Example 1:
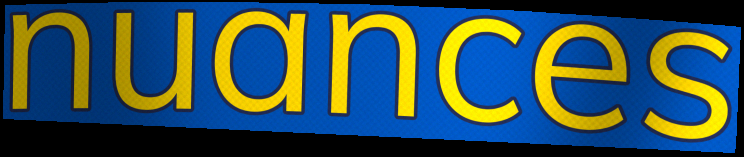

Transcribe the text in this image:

nuances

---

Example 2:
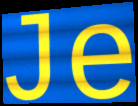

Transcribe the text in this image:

Je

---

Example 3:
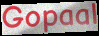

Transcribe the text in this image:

Gopaal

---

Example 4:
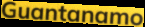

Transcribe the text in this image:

Guantanamo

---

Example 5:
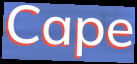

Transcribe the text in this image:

Cape